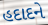
હદાદને